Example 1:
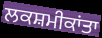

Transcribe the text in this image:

ਲਕਸ਼ਮੀਕਾਂਤਾ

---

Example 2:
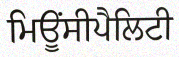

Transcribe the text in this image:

ਮਿਊਂਸੀਪੈਲਿਟੀ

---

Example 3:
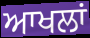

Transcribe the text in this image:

ਆਖਲਾਂ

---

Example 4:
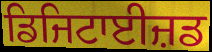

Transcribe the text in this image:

ਡਿਜਿਟਾਈਜ਼ਡ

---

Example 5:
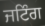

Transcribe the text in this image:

ਜਟਿੰਗ